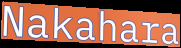
Nakahara